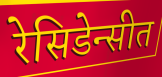
रेसिडेन्सीत